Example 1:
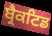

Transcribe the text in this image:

ਬ੍ਰੈਕਟਿਡ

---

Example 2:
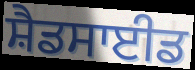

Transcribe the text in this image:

ਸ਼ੈਡਸਾਈਡ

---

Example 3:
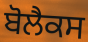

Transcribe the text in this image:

ਬੋਲੈਕਸ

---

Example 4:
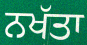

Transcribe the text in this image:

ਨਖੱਤਾ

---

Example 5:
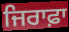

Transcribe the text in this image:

ਜਿਰਾਫ਼ਾ